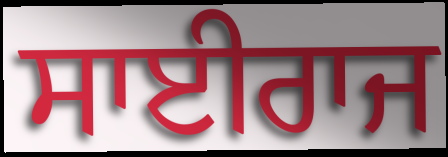
ਸਾਈਰਾਜ